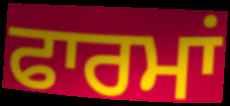
ਫਾਰਮਾਂ